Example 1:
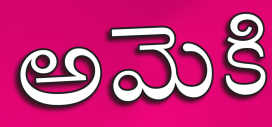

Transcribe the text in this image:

అమెకి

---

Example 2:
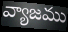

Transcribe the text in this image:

వ్యాజము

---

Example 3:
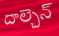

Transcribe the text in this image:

దాల్చెన్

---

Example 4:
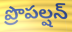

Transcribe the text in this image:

ప్రొపల్షన్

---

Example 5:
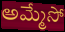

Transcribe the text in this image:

అమ్మేసో